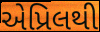
એપ્રિલથી